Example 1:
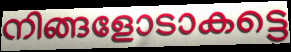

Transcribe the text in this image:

നിങ്ങളോടാകട്ടെ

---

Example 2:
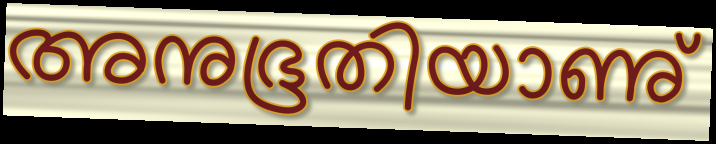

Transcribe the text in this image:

അനുഭൂതിയാണു്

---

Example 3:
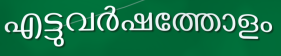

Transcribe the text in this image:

എട്ടുവർഷത്തോളം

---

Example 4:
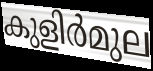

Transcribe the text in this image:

കുളിർമുല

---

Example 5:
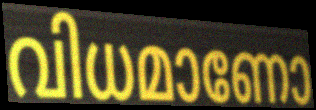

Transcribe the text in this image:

വിധമാണോ